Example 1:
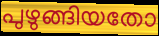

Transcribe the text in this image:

പുഴുങ്ങിയതോ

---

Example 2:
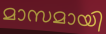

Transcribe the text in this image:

മാസമായി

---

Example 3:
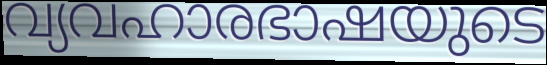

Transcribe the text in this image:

വ്യവഹാരഭാഷയുടെ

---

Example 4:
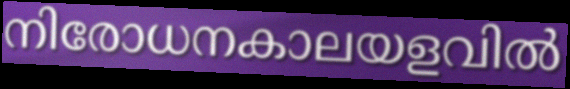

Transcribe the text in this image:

നിരോധനകാലയളവിൽ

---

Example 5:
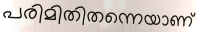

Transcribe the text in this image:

പരിമിതിതന്നെയാണ്